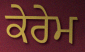
ਕੇਰੇਮ